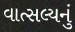
વાત્સલ્યનું